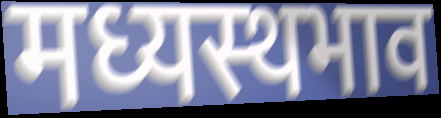
मध्यस्थभाव